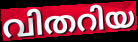
വിതറിയ